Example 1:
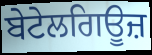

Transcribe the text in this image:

ਬੇਟੇਲਗਿਊਜ਼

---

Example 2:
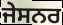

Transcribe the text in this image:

ਜੇਸਨਰ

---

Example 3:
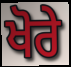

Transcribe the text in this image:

ਖੋਰੇ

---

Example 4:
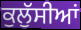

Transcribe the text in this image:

ਕੁਲੁੱਸੀਆਂ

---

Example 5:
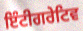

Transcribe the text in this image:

ਇੰਟੀਗਰੇਟਿਵ